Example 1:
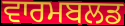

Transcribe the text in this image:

ਵਾਰਮਬਲਡ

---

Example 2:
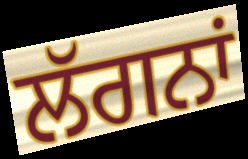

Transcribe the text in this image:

ਲੱਗਨਾਂ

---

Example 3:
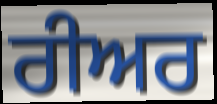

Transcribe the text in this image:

ਰੀਅਰ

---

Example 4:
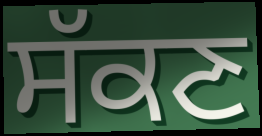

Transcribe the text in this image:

ਸੱਕਣ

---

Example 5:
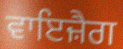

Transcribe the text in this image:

ਵਾਇਜ਼ੈਗ